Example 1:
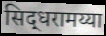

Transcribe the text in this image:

सिद्धरामय्या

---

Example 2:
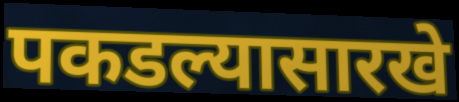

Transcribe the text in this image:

पकडल्यासारखे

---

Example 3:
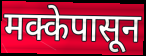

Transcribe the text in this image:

मक्केपासून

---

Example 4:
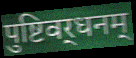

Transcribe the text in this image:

पुष्टिवर्धनम्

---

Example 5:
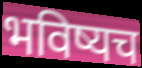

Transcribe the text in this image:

भविष्यच